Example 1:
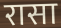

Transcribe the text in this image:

रासा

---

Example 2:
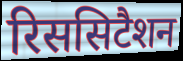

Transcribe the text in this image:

रिससिटैशन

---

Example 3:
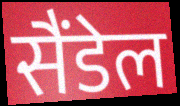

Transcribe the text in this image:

सैंडेल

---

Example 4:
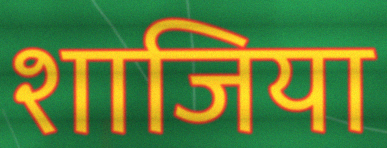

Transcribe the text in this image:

शाजिया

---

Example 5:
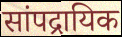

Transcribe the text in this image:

सांपद्रायिक